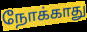
நோக்காது